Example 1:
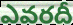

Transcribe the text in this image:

ఎవరదీ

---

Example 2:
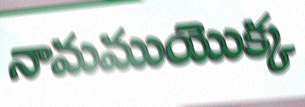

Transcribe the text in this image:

నామముయొక్క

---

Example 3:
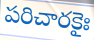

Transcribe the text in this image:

పరిచారకైః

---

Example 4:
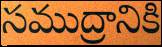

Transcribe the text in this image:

సముద్రానికి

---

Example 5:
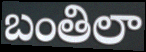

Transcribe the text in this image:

బంతిలా